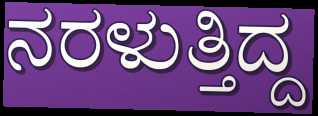
ನರಳುತ್ತಿದ್ದ